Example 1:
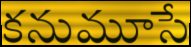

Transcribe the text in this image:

కనుమూసే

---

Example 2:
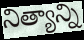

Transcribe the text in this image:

నిత్యాన్ని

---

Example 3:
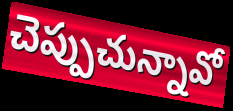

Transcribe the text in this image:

చెప్పుచున్నావో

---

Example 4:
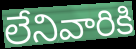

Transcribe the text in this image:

లేనివారికి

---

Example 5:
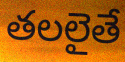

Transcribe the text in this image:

తలలైతే